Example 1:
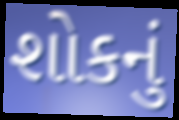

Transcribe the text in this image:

શોકનું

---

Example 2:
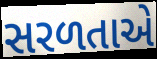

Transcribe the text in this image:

સરળતાએ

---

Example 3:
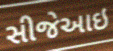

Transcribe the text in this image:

સીજેઆઇ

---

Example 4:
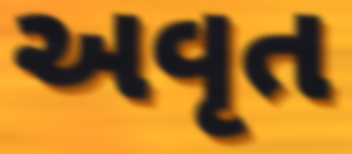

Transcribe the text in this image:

અવૃત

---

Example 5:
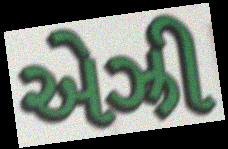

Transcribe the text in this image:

એઝ્રી